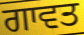
ਗਾਵਤ